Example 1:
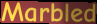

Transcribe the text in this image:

Marbled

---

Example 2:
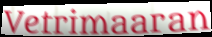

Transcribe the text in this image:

Vetrimaaran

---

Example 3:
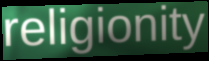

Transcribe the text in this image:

religionity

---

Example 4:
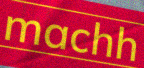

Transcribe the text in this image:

machh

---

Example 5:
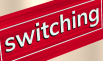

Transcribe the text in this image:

switching